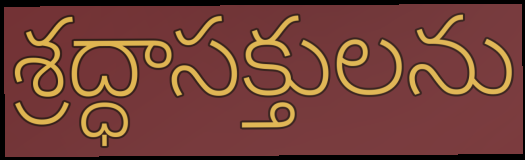
శ్రద్ధాసక్తులను